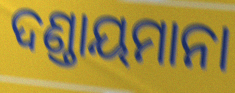
ଦଣ୍ଡାୟମାନା